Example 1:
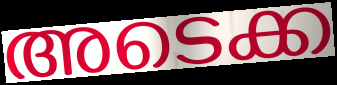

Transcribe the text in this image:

അടെക്ക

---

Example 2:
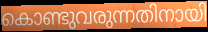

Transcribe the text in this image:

കൊണ്ടുവരുന്നതിനായി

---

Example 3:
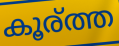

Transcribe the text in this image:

കൂര്ത്ത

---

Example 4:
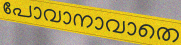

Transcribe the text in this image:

പോവാനാവാതെ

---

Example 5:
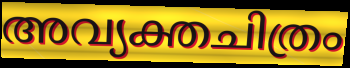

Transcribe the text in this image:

അവ്യക്തചിത്രം